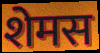
शेमस